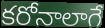
కరోనాలాగే